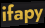
ifapy